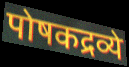
पोषकद्रव्ये